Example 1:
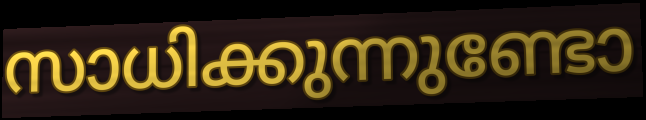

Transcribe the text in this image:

സാധിക്കുന്നുണ്ടോ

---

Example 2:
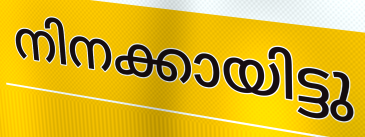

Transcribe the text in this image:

നിനക്കായിട്ടു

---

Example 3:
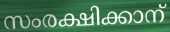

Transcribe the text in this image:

സംരക്ഷിക്കാന്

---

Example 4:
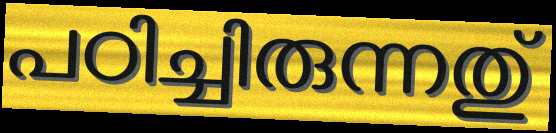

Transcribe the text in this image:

പഠിച്ചിരുന്നതു്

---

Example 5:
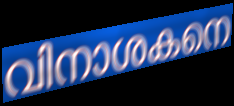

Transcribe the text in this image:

വിനാശകനെ